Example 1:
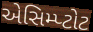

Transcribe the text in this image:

એસિમ્પ્ટોટ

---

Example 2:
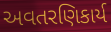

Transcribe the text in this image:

અવતરણિકાર્ય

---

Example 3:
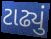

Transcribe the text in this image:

ટાઢ્યું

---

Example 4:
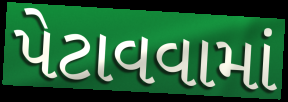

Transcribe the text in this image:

પેટાવવામાં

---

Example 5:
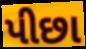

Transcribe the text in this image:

પીછા